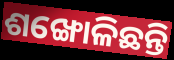
ଶଙ୍ଖୋଳିଛନ୍ତି